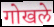
गोखले